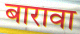
बारावा